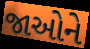
જાઓને